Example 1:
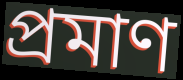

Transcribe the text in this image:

প্রমাণ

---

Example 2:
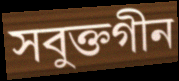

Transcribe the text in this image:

সবুক্তগীন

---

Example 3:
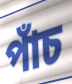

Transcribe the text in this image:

পাঁচ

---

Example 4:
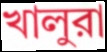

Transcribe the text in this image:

খালুরা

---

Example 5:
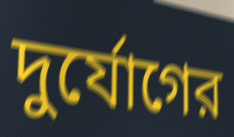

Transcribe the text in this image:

দুর্যোগের